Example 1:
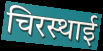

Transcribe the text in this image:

चिरस्थाई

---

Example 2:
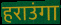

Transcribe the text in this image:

हराउंगा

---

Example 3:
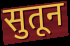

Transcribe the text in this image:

सुतून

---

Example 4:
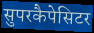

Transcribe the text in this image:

सुपरकैपेसिटर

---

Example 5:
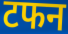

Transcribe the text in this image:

टफन